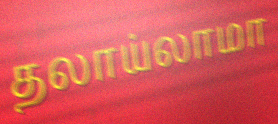
தலாய்லாமா